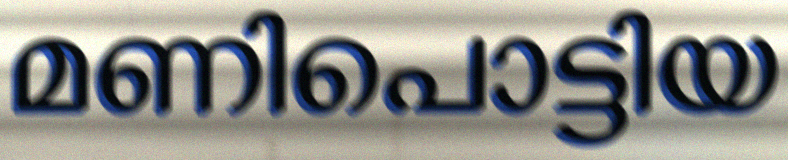
മണിപൊട്ടിയ